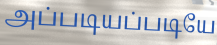
அப்படியப்படியே